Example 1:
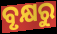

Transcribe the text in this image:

ବୃକ୍ଷରୁ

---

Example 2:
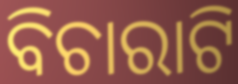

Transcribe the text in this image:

ବିଚାରାଟି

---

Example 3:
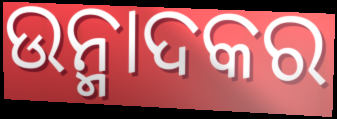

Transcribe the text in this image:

ଉନ୍ମାଦକର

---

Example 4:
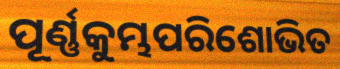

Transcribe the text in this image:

ପୂର୍ଣ୍ଣକୁମ୍ଭପରିଶୋଭିତ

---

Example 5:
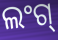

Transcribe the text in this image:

ଲଂଗ୍